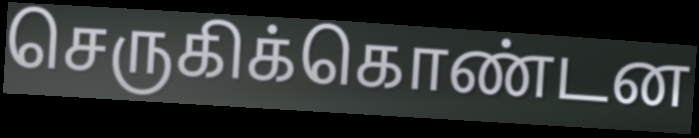
செருகிக்கொண்டன